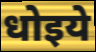
धोइये